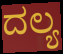
ದಲ್ಯ